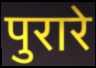
पुरारे